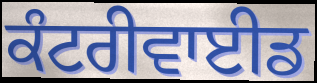
ਕੰਟਰੀਵਾਈਡ